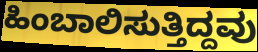
ಹಿಂಬಾಲಿಸುತ್ತಿದ್ದವು